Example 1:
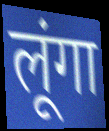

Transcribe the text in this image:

लूंगा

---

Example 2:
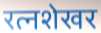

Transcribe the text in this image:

रत्नशेखर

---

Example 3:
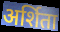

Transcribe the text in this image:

अर्शिता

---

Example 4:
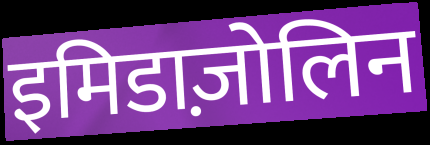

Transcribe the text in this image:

इमिडाज़ोलिन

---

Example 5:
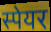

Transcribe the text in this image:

स्पेयर